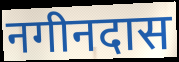
नगीनदास